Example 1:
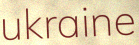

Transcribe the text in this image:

ukraine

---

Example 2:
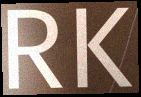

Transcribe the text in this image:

RK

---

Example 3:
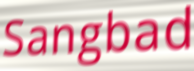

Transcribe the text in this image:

Sangbad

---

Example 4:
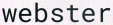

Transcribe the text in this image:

webster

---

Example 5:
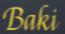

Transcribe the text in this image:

Baki